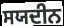
ਸਯਦੀਨ